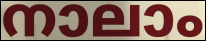
നാലാം